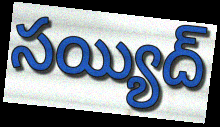
సయ్యిద్